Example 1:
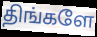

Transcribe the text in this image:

திங்களே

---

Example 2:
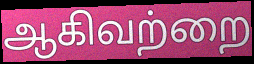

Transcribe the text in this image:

ஆகிவற்றை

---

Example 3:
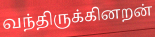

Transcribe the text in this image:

வந்திருக்கினறன்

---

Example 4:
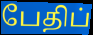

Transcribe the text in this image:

பேதிப்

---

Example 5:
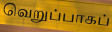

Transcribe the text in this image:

வெறுப்பாகப்